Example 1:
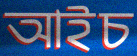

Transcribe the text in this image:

আইচ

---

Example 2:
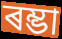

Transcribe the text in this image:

ৰম্ভা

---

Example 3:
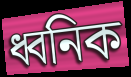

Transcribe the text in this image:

ধ্বনিক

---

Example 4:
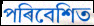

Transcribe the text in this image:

পৰিবেশিত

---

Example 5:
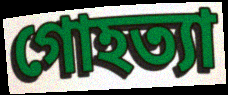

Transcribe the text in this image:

গোহত্যা